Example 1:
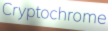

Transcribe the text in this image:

Cryptochrome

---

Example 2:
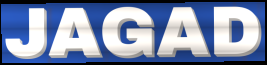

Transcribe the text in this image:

JAGAD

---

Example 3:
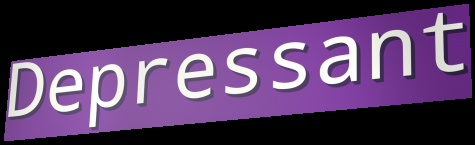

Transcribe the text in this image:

Depressant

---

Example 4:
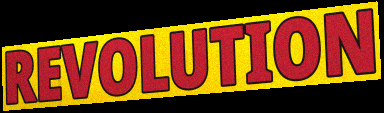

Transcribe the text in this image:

REVOLUTION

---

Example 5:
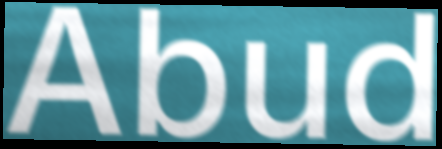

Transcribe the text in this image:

Abud